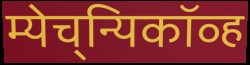
म्येच्‌न्यिकॉव्ह